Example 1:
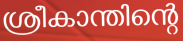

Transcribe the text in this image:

ശ്രീകാന്തിന്റെ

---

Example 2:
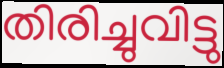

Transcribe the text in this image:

തിരിച്ചുവിട്ടു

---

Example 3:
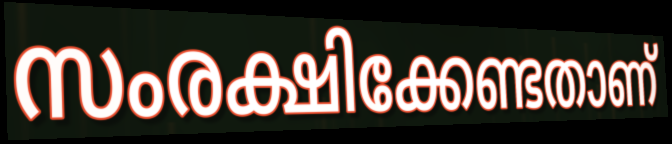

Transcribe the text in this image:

സംരക്ഷിക്കേണ്ടതാണ്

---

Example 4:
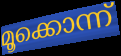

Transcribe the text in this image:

മൂക്കൊന്ന്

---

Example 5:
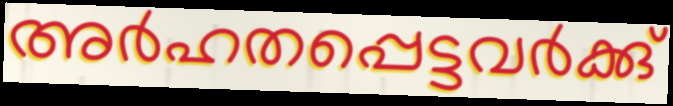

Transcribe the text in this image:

അർഹതപ്പെട്ടവർക്കു്